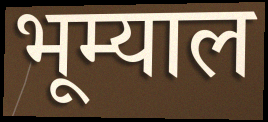
भूम्याल